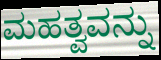
ಮಹತ್ವವನ್ನು